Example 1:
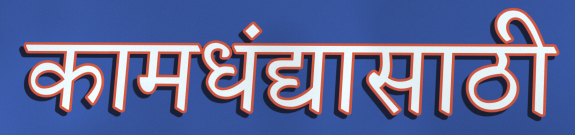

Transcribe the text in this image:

कामधंद्यासाठी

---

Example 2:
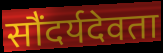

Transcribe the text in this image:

सौंदर्यदेवता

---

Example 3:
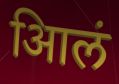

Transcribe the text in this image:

आिलं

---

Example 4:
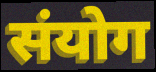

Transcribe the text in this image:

संयोग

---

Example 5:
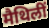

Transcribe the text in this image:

मैथिलीं